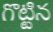
గొట్టిన